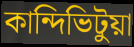
কান্দিভিটুয়া